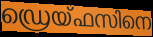
ഡ്രെയ്ഫസിനെ